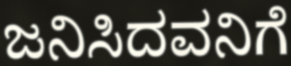
ಜನಿಸಿದವನಿಗೆ